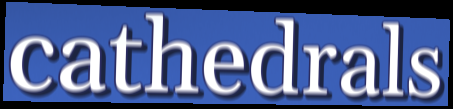
cathedrals